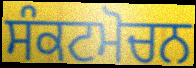
ਸੰਕਟਮੋਚਨ